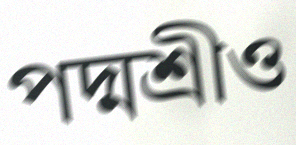
পদ্মশ্রীও